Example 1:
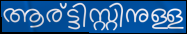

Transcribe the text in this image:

ആര്ട്ടിസ്റ്റിനുള്ള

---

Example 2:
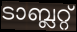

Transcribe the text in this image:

ടാബ്ലറ്റ്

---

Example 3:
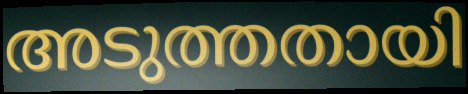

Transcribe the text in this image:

അടുത്തതായി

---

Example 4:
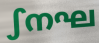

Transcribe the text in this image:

ഽനഘ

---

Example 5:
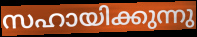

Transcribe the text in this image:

സഹായിക്കുന്നു